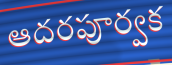
ఆదరపూర్వక